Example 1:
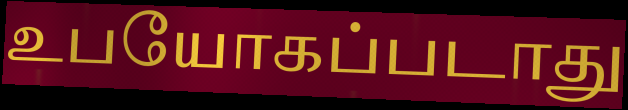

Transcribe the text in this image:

உபயோகப்படாது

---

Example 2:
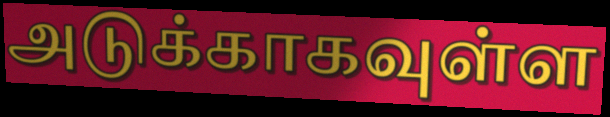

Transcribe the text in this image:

அடுக்காகவுள்ள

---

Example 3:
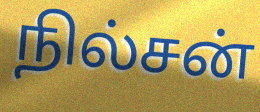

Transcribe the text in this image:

நில்சன்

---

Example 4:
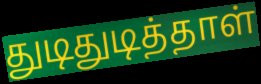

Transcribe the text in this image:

துடிதுடித்தாள்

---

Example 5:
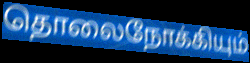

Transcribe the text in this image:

தொலைநோக்கியும்